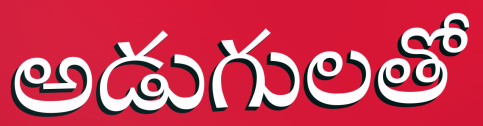
అడుగులతో